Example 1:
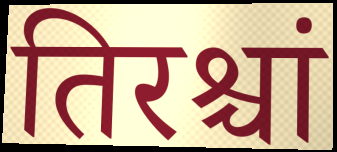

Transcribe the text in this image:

तिरश्चां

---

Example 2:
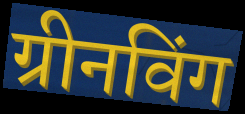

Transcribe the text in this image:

ग्रीनविंग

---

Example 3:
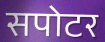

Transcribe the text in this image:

सपोटर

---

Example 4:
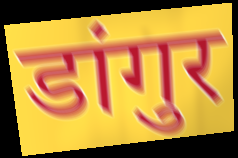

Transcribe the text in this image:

डांगुर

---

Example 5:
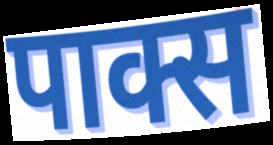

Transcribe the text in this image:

पाक्स